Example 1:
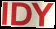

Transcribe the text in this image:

IDY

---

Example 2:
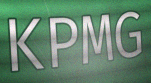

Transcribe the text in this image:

KPMG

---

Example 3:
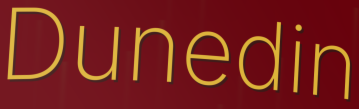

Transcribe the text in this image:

Dunedin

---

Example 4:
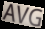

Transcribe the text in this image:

AVG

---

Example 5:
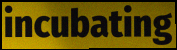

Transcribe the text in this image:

incubating